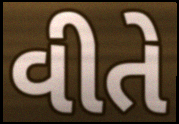
વીતે